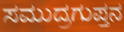
ಸಮುದ್ರಗುಪ್ತನ